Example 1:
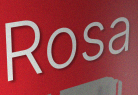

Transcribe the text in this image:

Rosa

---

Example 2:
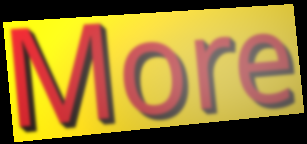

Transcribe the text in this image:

More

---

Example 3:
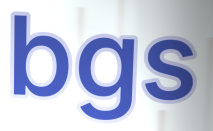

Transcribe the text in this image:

bgs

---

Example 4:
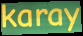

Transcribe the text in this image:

karay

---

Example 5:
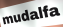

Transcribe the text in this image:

mudalfa